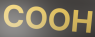
COOH